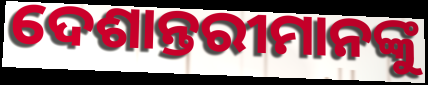
ଦେଶାନ୍ତରୀମାନଙ୍କୁ